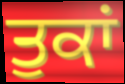
ਤੁਕਾਂ